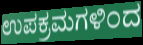
ಉಪಕ್ರಮಗಳಿಂದ